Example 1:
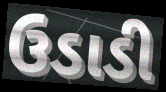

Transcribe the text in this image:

ઉડાડી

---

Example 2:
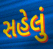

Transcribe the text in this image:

સહેલું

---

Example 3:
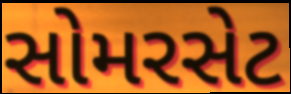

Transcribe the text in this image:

સોમરસેટ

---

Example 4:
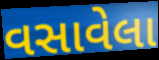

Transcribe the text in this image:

વસાવેલા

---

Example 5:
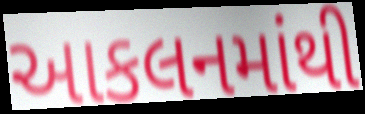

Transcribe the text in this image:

આકલનમાંથી